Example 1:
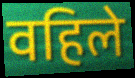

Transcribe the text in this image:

वहिले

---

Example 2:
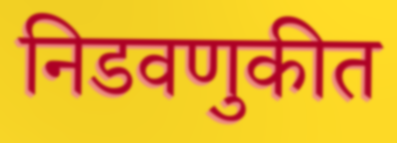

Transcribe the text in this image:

निडवणुकीत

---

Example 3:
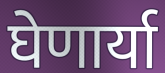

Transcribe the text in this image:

घेणार्या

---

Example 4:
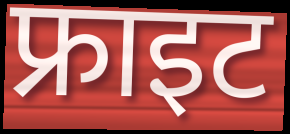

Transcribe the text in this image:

फ्राइट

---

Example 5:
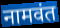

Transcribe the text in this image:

नामवंत